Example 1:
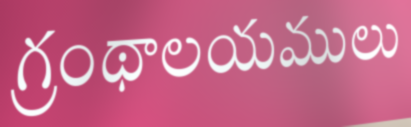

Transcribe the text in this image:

గ్రంథాలయములు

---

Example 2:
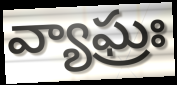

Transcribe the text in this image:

వ్యాఘ్రః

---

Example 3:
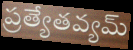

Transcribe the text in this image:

ప్రత్యేతవ్యమ్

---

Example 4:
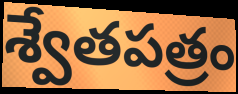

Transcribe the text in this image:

శ్వేతపత్రం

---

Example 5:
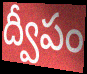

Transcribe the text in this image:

ద్వీపం